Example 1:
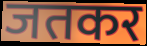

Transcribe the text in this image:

जतकर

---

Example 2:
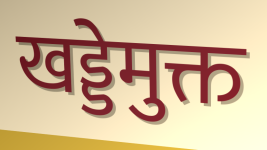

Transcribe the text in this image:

खड्डेमुक्त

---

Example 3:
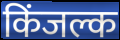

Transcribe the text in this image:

किंजल्क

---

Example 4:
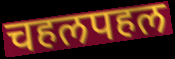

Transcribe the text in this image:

चहलपहल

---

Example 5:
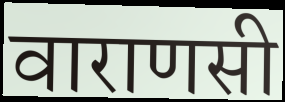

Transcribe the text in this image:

वाराणसी